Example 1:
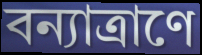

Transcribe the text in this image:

বন্যাত্রাণে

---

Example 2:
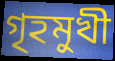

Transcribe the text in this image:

গৃহমুখী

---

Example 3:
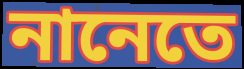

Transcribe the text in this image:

নানেতে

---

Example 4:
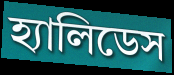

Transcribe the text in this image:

হ্যালিডেস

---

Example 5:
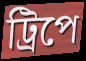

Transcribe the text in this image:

ট্রিপে